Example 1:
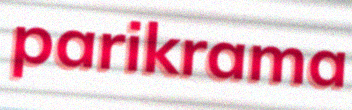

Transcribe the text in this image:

parikrama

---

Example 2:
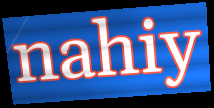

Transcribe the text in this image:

nahiy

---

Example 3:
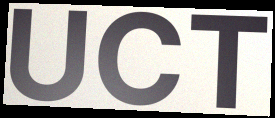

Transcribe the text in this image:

UCT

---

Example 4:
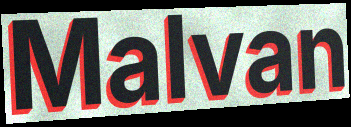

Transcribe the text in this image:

Malvan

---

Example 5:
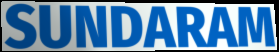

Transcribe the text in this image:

SUNDARAM